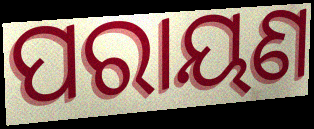
ପରାୟଣ